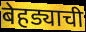
बेहड्याची